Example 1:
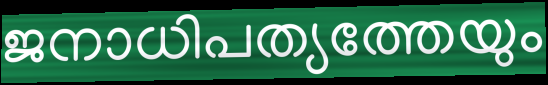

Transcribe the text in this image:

ജനാധിപത്യത്തേയും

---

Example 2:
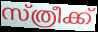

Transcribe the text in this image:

സ്‌ത്രീക്ക്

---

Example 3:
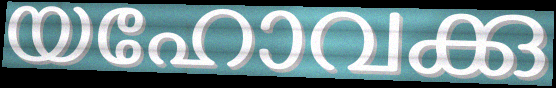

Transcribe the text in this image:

യഹോവക്കു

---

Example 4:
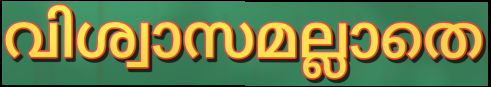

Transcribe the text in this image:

വിശ്വാസമല്ലാതെ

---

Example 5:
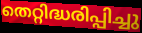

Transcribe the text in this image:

തെറ്റിദ്ധരിപ്പിച്ചു